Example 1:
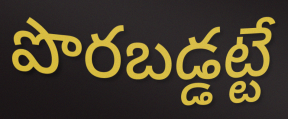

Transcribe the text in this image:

పొరబడ్డట్టే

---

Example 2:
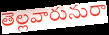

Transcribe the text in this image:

తెల్లవారునురా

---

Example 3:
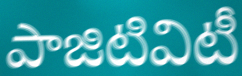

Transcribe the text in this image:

పాజిటివిటీ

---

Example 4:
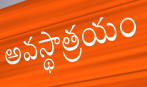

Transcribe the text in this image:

అవస్థాత్రయం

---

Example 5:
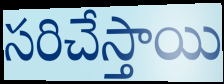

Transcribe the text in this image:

సరిచేస్తాయి